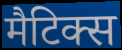
मैटिक्स